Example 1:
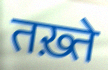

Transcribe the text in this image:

तख़्ते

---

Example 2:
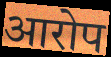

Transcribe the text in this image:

आरोप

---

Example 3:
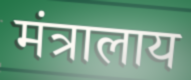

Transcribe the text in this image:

मंत्रालाय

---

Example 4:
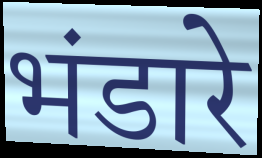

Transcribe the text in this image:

भंडारे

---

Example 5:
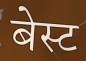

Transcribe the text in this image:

बेस्ट